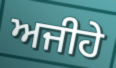
ਅਜੀਹੇ